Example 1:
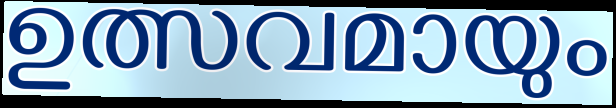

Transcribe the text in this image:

ഉത്സവമായും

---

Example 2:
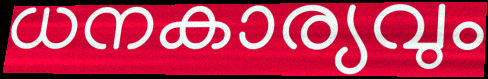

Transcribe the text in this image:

ധനകാര്യവും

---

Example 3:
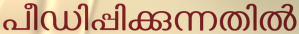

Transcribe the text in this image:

പീഡിപ്പിക്കുന്നതിൽ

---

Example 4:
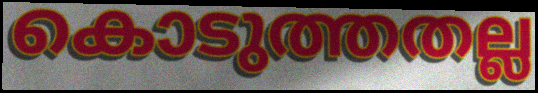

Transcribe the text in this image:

കൊടുത്തതല്ല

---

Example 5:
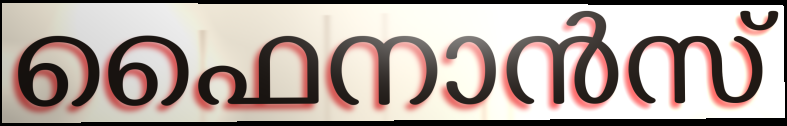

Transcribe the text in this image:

ഫൈനാൻസ്